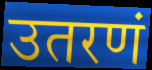
उतरणं